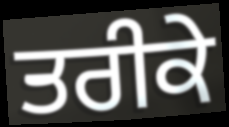
ਤਰੀਕੇ